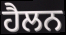
ਹੈਲਨ